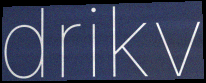
drikv